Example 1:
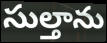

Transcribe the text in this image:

సుల్తాను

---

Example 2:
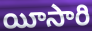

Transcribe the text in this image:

యీసారి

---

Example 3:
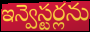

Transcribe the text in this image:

ఇన్వెస్టర్లను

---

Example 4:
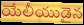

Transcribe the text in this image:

యేలీయుడైన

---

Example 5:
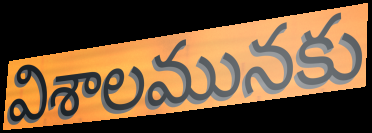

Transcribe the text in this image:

విశాలమునకు